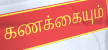
கணக்கையும்